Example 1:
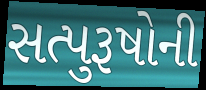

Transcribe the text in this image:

સત્પુરૂષોની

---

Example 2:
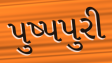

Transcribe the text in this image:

પુષ્પપુરી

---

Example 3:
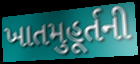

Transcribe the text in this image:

ખાતમુહૂર્તની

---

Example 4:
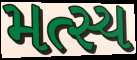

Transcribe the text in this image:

મત્સ્ય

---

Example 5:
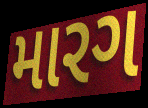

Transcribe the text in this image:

મારગ